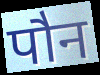
पौन